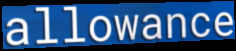
allowance